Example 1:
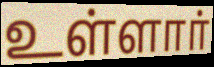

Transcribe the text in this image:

உள்ளார்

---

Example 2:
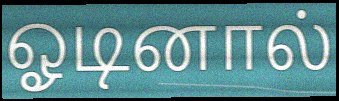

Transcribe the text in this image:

ஓடினால்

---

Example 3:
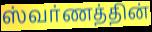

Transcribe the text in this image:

ஸ்வர்ணத்தின்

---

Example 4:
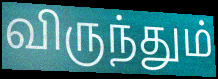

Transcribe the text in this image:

விருந்தும்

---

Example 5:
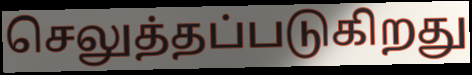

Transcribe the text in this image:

செலுத்தப்படுகிறது